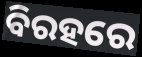
ବିରହରେ